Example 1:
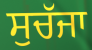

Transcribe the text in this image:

ਸੁਚੱਜਾ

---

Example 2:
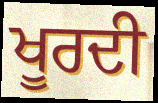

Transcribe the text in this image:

ਖੂਰਦੀ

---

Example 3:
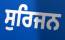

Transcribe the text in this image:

ਸੁਰਿਜਨ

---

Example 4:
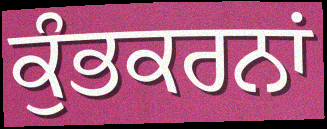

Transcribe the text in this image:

ਕੁੰਭਕਰਨਾਂ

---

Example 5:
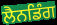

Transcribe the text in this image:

ਲੈਨਡਿੰਗ